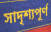
সাদৃশ্যপূৰ্ণ